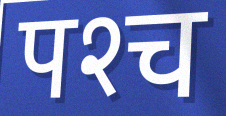
पश्च